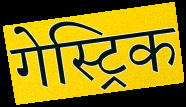
गेस्ट्रिक